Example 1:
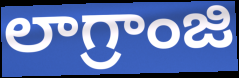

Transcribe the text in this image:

లాగ్రాంజి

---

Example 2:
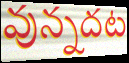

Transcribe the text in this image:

వున్నదట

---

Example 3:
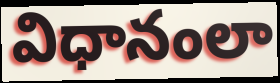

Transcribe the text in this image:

విధానంలా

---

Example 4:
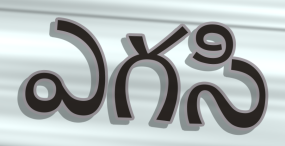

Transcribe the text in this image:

ఎగసి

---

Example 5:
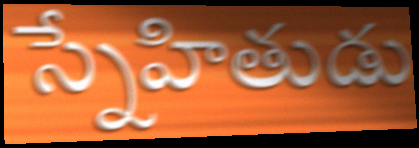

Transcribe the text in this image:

స్నేహితుడు